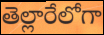
తెల్లారేలోగా